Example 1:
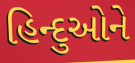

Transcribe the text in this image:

હિન્દુઓને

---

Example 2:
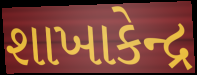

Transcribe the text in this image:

શાખાકેન્દ્ર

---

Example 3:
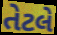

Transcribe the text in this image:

તેટલે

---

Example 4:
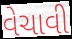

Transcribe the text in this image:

વેચાવી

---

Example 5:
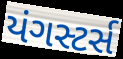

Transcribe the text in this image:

યંગસ્ટર્સ